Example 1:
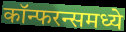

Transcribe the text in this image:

कॉन्फरन्समध्ये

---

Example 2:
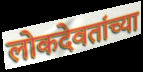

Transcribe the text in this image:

लोकदेवतांच्या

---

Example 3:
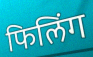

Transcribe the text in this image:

फिलिंग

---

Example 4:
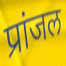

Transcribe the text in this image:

प्रांजल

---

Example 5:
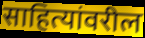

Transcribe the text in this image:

साहित्यांवरील